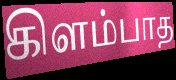
கிளம்பாத